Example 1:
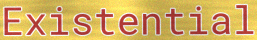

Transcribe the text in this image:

Existential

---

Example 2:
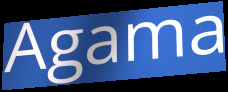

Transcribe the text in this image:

Agama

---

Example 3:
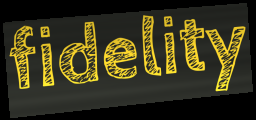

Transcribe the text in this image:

fidelity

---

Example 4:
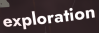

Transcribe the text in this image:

exploration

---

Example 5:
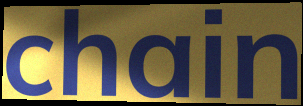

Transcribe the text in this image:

chain